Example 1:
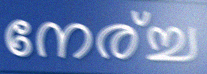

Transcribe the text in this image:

നേര്ച്ച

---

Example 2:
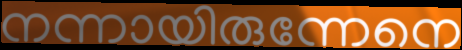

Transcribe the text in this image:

നന്നായിരുന്നേനെ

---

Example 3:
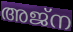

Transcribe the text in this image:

അജ്ന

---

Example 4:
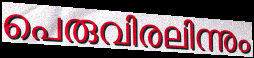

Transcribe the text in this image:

പെരുവിരലിന്നും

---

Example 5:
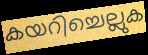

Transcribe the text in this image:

കയറിച്ചെല്ലുക